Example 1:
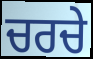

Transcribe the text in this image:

ਚਰਚੇ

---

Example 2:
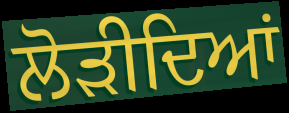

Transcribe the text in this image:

ਲੋੜੀਦਿਆਂ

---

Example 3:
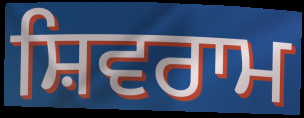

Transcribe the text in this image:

ਸ਼ਿਵਰਾਮ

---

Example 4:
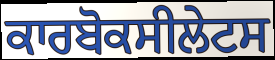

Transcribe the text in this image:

ਕਾਰਬੋਕਸੀਲੇਟਸ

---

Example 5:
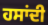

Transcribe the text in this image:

ਹਸਾਂਦੀ